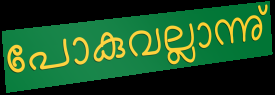
പോകുവല്ലാന്നു്